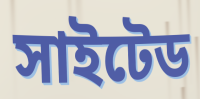
সাইটেড